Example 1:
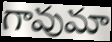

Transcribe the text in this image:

గావుమా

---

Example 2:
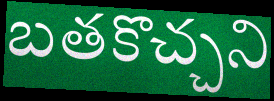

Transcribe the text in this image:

బతకొచ్చని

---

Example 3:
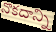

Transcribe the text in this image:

నొకదాన్ని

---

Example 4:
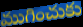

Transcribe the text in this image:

ముగించుకు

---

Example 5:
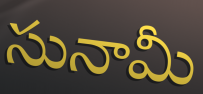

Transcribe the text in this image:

సునామీ